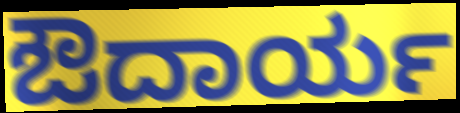
ಔದಾರ್ಯ